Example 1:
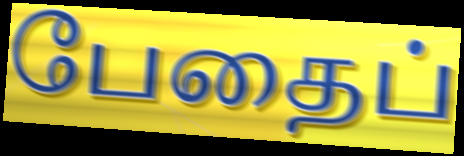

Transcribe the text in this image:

பேதைப்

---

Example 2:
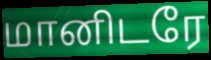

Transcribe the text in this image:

மானிடரே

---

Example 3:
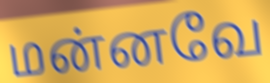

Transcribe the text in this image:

மன்னவே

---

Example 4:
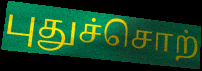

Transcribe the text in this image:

புதுச்சொற்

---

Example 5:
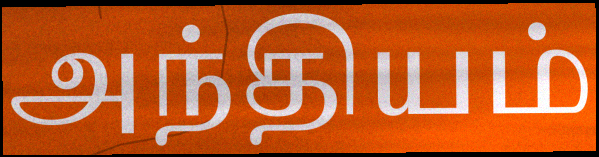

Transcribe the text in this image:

அந்தியம்